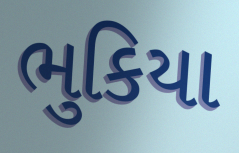
ભુકિયા